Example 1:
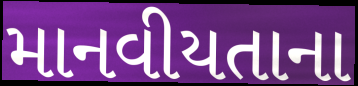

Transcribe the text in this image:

માનવીયતાના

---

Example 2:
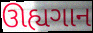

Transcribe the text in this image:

ઊહ્યગાન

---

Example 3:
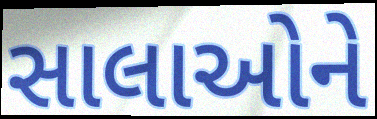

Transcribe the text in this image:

સાલાઓને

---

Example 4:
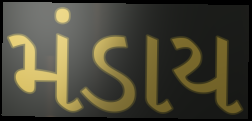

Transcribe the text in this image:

મંડાય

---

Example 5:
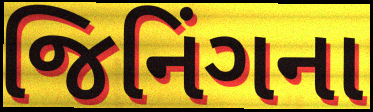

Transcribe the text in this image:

જિનિંગના